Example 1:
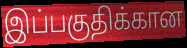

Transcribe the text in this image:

இப்பகுதிக்கான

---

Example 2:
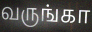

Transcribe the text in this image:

வருங்கா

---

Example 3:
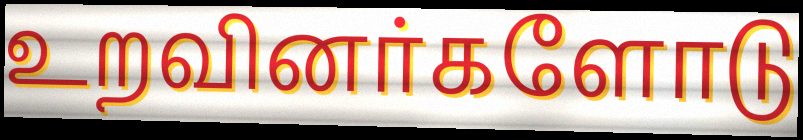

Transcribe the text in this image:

உறவினர்களோடு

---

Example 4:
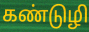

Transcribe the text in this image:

கண்டுழி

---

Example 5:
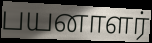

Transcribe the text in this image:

பயனாளர்